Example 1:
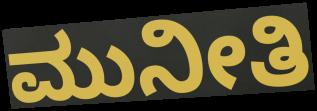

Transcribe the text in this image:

ಮುನೀತಿ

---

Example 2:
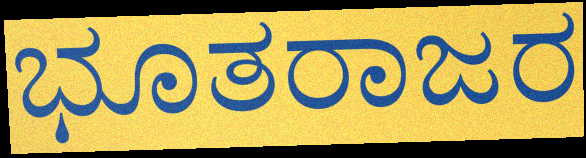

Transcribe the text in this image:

ಭೂತರಾಜರ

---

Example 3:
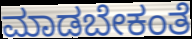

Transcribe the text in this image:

ಮಾಡಬೇಕಂತೆ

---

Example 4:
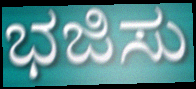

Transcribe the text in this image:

ಭಜಿಸು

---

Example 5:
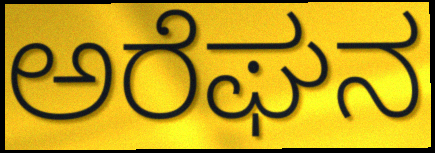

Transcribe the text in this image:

ಅರೆಘನ